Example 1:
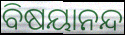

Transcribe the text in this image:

ବିଷୟାନନ୍ଦ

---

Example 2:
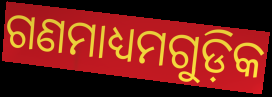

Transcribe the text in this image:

ଗଣମାଧ୍ୟମଗୁଡ଼ିକ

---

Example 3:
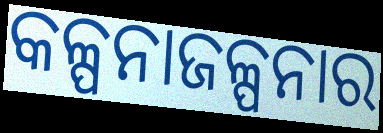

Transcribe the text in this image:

କଳ୍ପନାଜଳ୍ପନାର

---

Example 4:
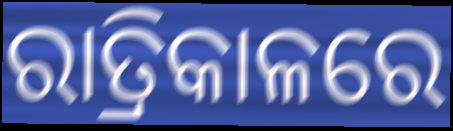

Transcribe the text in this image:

ରାତ୍ରିକାଳରେ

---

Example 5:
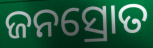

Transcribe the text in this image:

ଜନସ୍ରୋତ